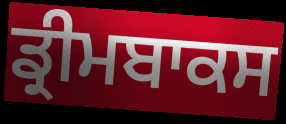
ਡ੍ਰੀਮਬਾਕਸ